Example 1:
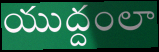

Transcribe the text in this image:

యుద్దంలా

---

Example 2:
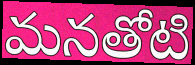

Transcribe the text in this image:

మనతోటి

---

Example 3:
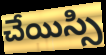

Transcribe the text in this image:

చేయిస్సి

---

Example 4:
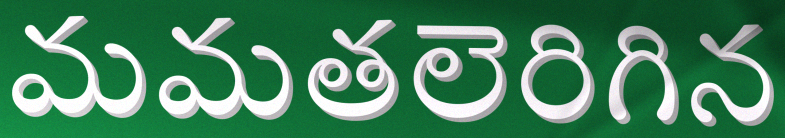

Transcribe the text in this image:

మమతలెరిగిన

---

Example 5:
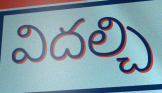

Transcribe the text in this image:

విదల్చి